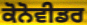
ਕੋਨੋਵੀਡਰ